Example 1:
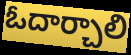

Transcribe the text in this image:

ఓదార్చాలి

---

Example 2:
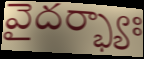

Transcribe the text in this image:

వైదర్భ్యాః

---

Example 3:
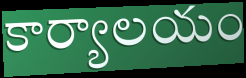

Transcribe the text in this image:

కార్యాలయం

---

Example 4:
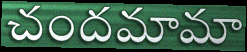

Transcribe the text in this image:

చందమామా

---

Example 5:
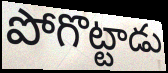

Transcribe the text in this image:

పోగొట్టాడు